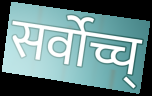
सर्वोच्च्